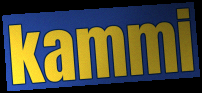
kammi